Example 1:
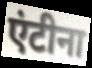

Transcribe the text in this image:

एंटीना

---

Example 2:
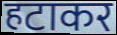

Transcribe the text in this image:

हटाकर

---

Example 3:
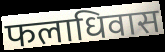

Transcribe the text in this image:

फलाधिवास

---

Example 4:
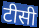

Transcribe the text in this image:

टीसी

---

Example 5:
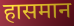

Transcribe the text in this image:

हासमान